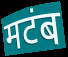
मटंब